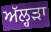
ਅੱਲ੍ਹੜਾ